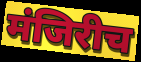
मंजिरीच